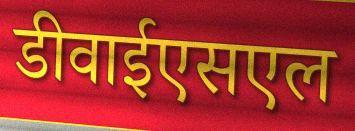
डीवाईएसएल